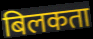
बिलकता